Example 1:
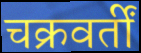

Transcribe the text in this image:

चक्रवर्तीं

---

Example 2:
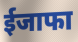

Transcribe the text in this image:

ईजाफा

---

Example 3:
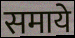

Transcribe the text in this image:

समाये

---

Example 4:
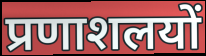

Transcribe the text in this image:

प्रणाशलयों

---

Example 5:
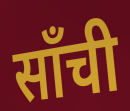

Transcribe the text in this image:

साँची